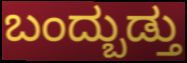
ಬಂದ್ಬುಡ್ತು